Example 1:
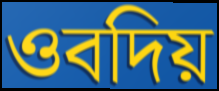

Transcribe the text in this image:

ওবদিয়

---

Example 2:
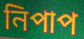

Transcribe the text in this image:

নিপাপ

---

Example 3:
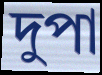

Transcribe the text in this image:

দুপা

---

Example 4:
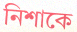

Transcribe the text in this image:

নিশাকে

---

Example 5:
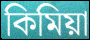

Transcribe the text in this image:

কিমিয়া